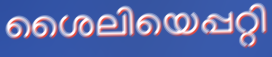
ശൈലിയെപ്പറ്റി